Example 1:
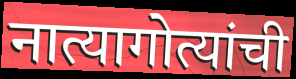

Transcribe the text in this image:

नात्यागोत्यांची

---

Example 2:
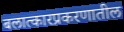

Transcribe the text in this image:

बलात्कारप्रकरणातील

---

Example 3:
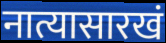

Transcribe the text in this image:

नात्यासारखं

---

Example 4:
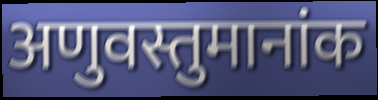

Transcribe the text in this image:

अणुवस्तुमानांक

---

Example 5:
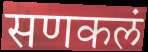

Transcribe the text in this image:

सणकलं